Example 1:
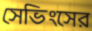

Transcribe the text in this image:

সেভিংসের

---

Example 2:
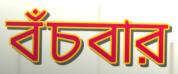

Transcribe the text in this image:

বঁচবার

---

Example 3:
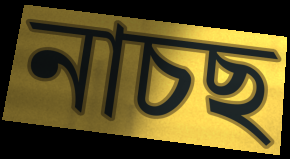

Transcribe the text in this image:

নাচছ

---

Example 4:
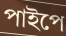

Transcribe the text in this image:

পাইপে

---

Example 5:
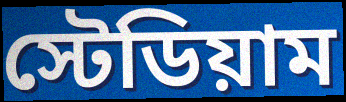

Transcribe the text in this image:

স্টেডিয়াম